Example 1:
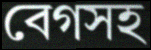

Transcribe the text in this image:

বেগসহ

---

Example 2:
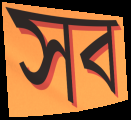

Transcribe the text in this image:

সব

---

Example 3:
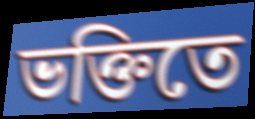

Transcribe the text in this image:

ভক্তিতে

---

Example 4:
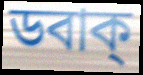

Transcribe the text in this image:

ডবাক্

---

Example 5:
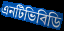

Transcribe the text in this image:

এনটিভিবিডি